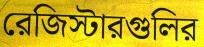
রেজিস্টারগুলির